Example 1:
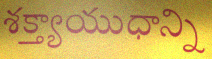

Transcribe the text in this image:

శక్త్యాయుధాన్ని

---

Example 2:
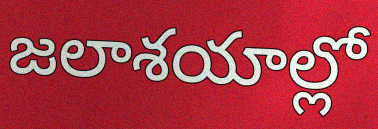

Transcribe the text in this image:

జలాశయాల్లో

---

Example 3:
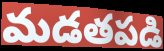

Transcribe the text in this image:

మడతపడి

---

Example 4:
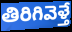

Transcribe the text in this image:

తిరిగివెళ్తే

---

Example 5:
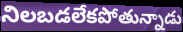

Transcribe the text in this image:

నిలబడలేకపోతున్నాడు